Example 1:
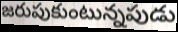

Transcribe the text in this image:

జరుపుకుంటున్నపుడు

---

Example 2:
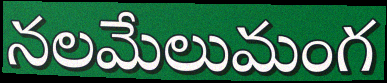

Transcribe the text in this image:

నలమేలుమంగ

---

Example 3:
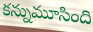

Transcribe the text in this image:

కన్నుమూసింది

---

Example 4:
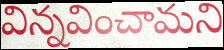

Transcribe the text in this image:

విన్నవించామని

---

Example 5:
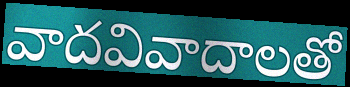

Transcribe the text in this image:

వాదవివాదాలతో